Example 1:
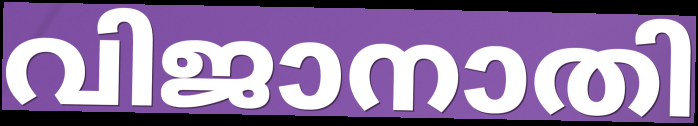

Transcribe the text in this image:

വിജാനാതി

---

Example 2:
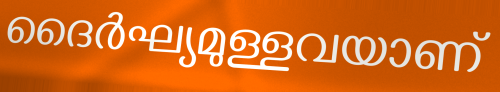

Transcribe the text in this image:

ദൈർഘ്യമുള്ളവയാണ്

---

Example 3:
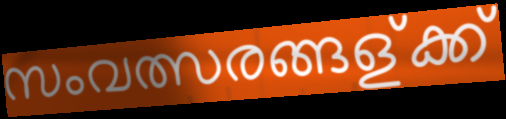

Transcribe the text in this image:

സംവത്സരങ്ങള്ക്ക്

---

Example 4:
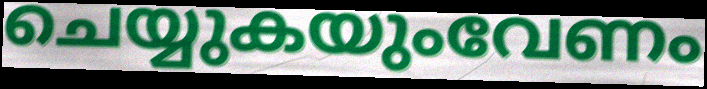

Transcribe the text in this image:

ചെയ്യുകയുംവേണം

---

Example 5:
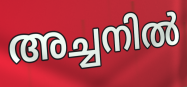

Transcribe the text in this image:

അച്ചനിൽ